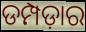
ଡମ୍ପଡ଼ାର